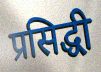
प्रसिद्धी